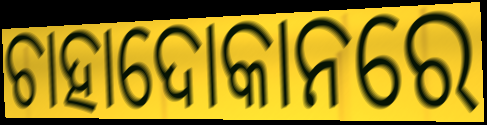
ଚାହାଦୋକାନରେ